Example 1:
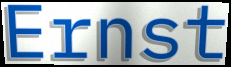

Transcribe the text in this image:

Ernst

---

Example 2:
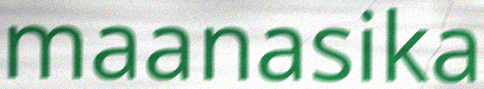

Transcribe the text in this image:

maanasika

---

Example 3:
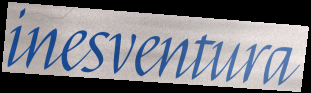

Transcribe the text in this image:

inesventura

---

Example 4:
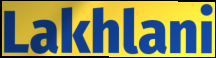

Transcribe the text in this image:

Lakhlani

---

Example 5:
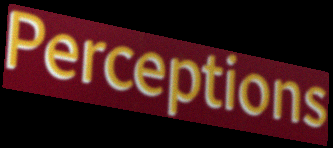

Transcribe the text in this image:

Perceptions